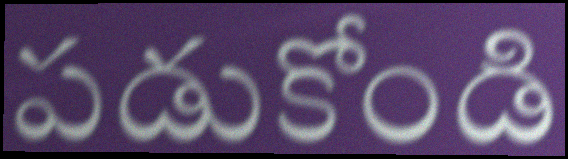
పడుకోండి